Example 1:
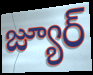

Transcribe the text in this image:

జ్యూర్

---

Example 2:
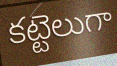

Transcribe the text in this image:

కట్టెలుగా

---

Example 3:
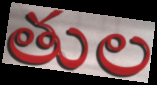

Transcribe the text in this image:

తుల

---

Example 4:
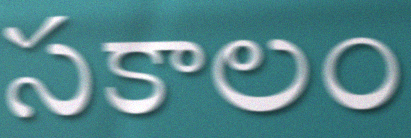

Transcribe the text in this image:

సకాలం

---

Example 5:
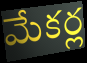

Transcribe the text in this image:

మేకర్ల